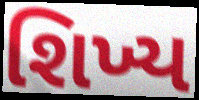
શિખ્ય